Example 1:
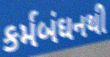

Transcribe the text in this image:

કર્મબંઘનથી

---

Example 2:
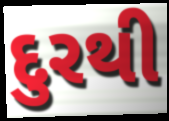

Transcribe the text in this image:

દુરથી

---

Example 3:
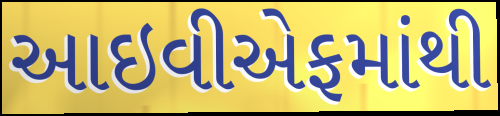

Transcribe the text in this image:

આઇવીએફમાંથી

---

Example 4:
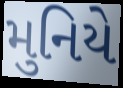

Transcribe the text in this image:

મુનિયે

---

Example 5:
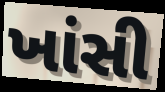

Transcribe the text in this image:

ખાંસી